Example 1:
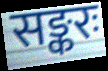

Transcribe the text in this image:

सङ्करः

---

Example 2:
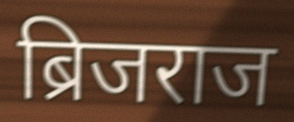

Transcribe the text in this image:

ब्रिजराज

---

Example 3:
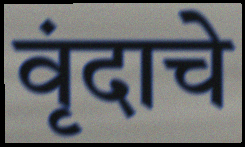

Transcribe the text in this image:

वृंदाचे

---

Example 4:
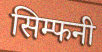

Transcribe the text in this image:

सिम्फनी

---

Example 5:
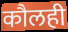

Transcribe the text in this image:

कौलही